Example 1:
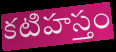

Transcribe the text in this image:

కటిహస్తం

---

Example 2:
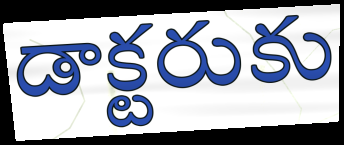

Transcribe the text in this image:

డాక్టరుకు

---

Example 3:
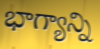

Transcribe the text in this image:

భాగ్యాన్ని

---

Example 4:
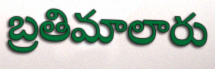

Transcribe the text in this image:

బ్రతిమాలారు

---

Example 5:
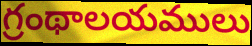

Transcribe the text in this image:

గ్రంథాలయములు